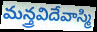
మన్త్రవిదేవాస్మి